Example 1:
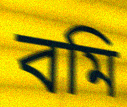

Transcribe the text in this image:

বমি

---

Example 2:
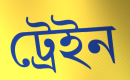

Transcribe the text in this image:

ট্ৰেইন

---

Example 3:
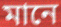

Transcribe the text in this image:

মানে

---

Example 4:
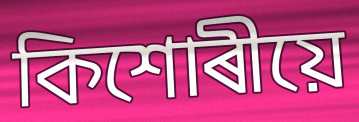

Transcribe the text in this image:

কিশোৰীয়ে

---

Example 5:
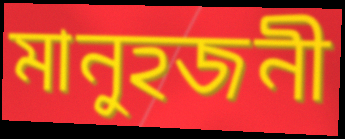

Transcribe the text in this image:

মানুহজনী